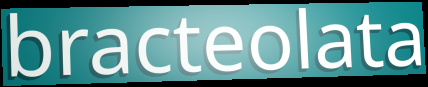
bracteolata